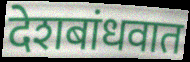
देशबांधवात